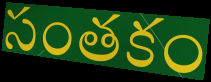
సంతకం